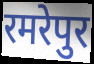
रमरेपुर